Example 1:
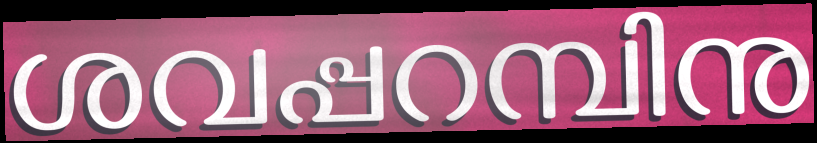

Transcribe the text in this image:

ശവപ്പറമ്പിനു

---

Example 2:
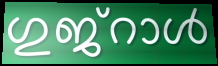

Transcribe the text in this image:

ഗുജ്റാൾ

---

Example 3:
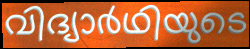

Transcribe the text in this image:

വിദ്യാർഥിയുടെ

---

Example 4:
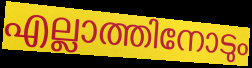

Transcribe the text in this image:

എല്ലാത്തിനോടും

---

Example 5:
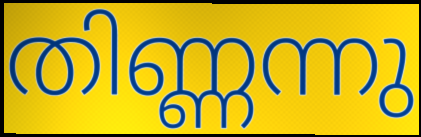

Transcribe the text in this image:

തിണ്ണന്നു